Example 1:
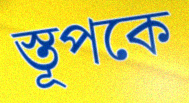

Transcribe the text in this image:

স্তূপকে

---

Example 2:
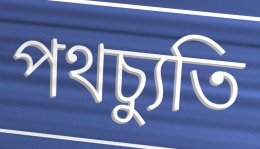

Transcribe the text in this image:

পথচ্যুতি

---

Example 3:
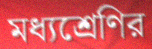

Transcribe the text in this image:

মধ্যশ্রেণির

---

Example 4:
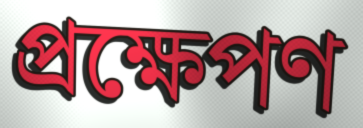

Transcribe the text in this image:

প্রক্ষেপণ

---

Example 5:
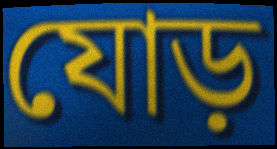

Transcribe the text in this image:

যোড়